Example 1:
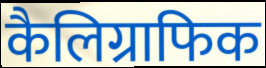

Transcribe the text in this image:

कैलिग्राफिक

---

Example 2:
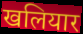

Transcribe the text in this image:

खलियार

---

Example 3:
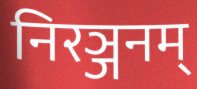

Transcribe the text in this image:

निरञ्जनम्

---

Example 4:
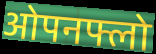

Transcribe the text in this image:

ओपनफ्लो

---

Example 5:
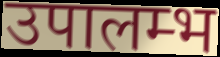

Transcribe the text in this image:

उपालम्भ